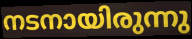
നടനായിരുന്നു